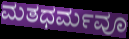
ಮತಧರ್ಮವೂ